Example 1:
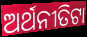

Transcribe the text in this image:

ଅର୍ଥନୀତିଟା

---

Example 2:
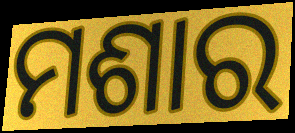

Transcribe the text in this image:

ମଶାର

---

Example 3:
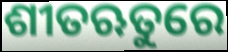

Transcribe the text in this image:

ଶୀତଋତୁରେ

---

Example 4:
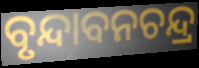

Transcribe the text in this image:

ବୃନ୍ଦାବନଚନ୍ଦ୍ର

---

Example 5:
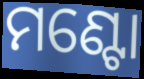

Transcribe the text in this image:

ମଣ୍ଟୋ